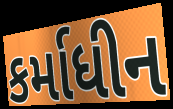
કર્માધીન